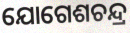
ଯୋଗେଶଚନ୍ଦ୍ର